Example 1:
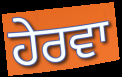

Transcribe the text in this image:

ਹੇਰਵਾ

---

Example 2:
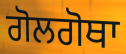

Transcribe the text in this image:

ਗੋਲਗੋਥਾ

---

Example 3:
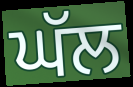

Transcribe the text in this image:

ਘੱਲ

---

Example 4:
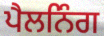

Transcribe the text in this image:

ਪੈਲਨਿੰਗ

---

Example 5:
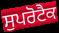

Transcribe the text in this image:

ਸੁਪਰੋਟੈਕ